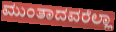
ಮುಂತಾದವರೆಲ್ಲಾ